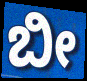
ಬೀ